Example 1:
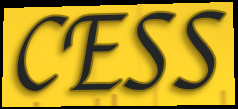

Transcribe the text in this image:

CESS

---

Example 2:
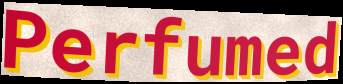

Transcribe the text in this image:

Perfumed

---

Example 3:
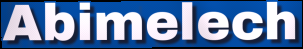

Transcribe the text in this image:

Abimelech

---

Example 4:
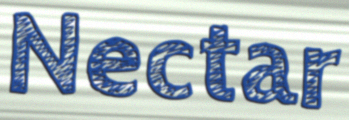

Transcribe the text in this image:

Nectar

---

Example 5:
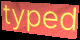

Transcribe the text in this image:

typed